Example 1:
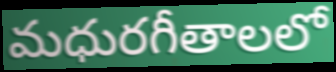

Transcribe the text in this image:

మధురగీతాలలో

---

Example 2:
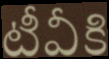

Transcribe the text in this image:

టీవీకి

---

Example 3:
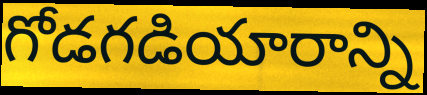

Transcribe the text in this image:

గోడగడియారాన్ని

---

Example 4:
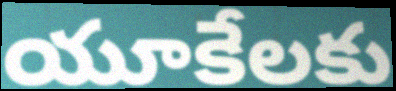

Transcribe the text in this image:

యూకేలకు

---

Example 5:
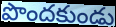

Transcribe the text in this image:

పొందకుండు